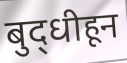
बुद्धीहून